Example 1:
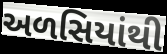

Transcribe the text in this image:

અળસિયાંથી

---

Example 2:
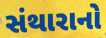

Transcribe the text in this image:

સંથારાનો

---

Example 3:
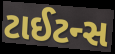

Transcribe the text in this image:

ટાઈટન્સ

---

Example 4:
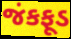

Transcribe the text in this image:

જંકફૂડ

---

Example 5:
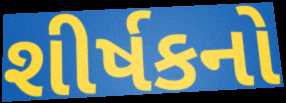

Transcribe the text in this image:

શીર્ષકનો